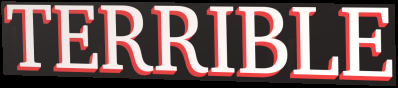
TERRIBLE